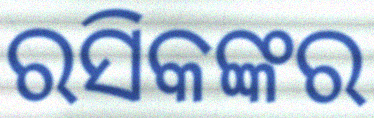
ରସିକଙ୍କର